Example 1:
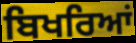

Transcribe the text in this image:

ਬਿਖਰਿਆਂ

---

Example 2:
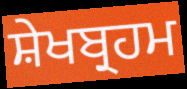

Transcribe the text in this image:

ਸ਼ੇਖਬ੍ਰਹਮ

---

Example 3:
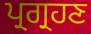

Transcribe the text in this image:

ਪ੍ਰਗ੍ਰਹਣ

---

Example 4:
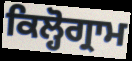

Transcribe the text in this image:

ਕਿਲ੍ਹੋਗ੍ਰਾਮ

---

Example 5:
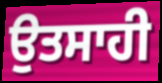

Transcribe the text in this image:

ਉਤਸਾਹੀ